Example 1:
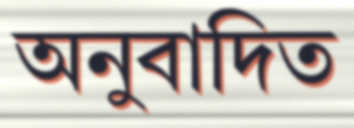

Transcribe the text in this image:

অনুবাদিত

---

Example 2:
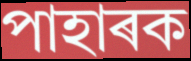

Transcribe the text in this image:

পাহাৰক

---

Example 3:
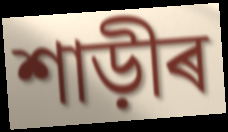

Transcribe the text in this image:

শাড়ীৰ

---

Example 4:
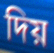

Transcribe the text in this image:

দিয়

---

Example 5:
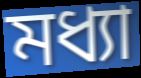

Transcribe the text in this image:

মধ্যা